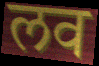
लव